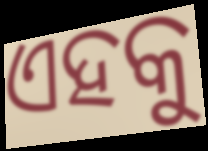
ଏହକୁ